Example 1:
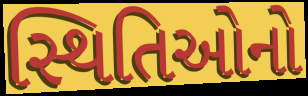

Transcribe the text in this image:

સ્થિતિઓનો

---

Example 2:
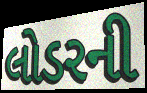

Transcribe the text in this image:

લોડરની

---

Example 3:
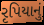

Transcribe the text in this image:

રૃપિયાનું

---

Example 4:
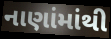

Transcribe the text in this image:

નાણાંમાંથી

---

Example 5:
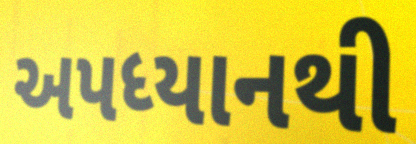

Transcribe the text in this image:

અપધ્યાનથી